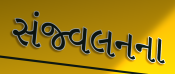
સંજ્વલનના